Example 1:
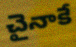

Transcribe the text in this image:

చైనాకే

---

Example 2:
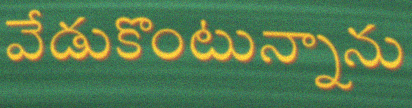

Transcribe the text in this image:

వేడుకొంటున్నాను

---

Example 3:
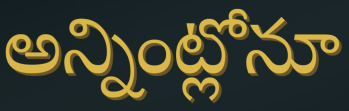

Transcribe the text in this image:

అన్నింట్లోనూ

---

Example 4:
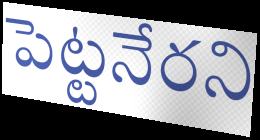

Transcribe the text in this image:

పెట్టనేరని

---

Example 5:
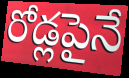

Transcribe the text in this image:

రోడ్లపైనే